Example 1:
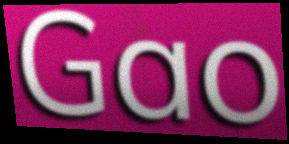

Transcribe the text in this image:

Gao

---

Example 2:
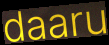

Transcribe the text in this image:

daaru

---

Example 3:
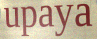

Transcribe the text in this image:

upaya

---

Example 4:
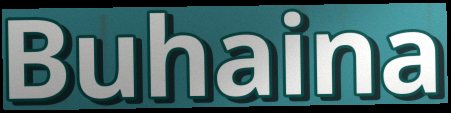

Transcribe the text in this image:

Buhaina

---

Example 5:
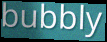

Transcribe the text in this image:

bubbly